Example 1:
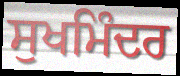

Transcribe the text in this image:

ਸੁਖਮਿੰਦਰ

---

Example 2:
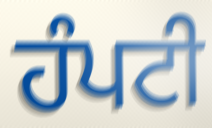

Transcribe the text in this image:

ਹੰਪਟੀ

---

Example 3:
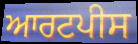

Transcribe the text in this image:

ਆਰਟਪੀਸ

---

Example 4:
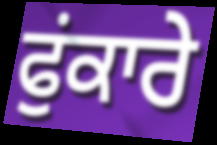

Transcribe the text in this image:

ਫੁਂਕਾਰੇ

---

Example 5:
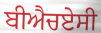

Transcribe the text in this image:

ਬੀਐਚਏਸੀ